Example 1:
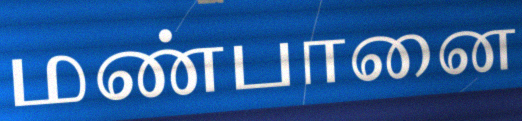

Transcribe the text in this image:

மண்பானை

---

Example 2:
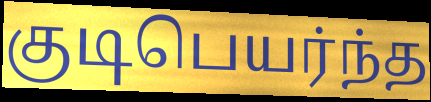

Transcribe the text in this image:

குடிபெயர்ந்த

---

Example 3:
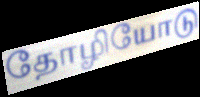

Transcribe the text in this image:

தோழியோடு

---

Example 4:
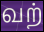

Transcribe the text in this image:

வற்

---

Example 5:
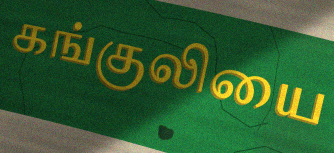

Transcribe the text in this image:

கங்குலியை